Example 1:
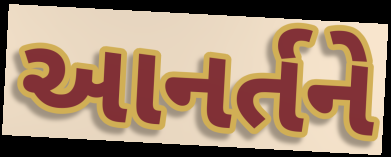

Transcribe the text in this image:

આનર્તને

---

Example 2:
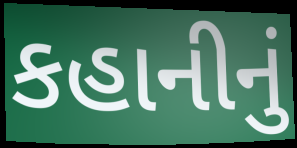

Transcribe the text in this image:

કહાનીનું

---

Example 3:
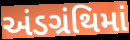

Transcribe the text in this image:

અંડગ્રંથિમાં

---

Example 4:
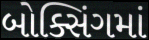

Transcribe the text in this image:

બોક્સિંગમાં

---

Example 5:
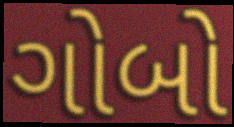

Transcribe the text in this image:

ગોબો